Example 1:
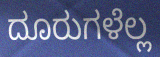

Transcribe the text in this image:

ದೂರುಗಳೆಲ್ಲ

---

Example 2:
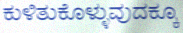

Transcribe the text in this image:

ಕುಳಿತುಕೊಳ್ಳುವುದಕ್ಕೂ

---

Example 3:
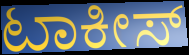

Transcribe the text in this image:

ಟಾಕೀಸ್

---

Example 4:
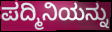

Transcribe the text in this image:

ಪದ್ಮಿನಿಯನ್ನು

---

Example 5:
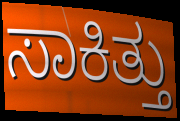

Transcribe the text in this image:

ಸಾಕಿತ್ತು